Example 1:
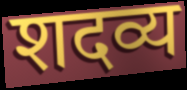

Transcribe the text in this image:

शदव्य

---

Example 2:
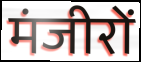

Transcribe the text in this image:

मंजीरों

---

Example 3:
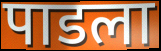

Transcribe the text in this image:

पाडला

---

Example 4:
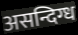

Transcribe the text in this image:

असन्दिग्ध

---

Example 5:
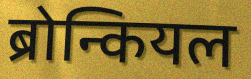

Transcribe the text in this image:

ब्रोन्कियल